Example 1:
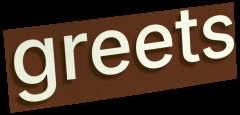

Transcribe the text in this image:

greets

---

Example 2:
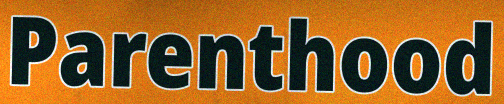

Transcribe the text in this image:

Parenthood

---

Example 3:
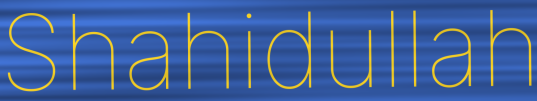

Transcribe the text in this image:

Shahidullah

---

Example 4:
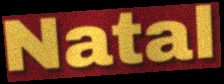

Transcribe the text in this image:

Natal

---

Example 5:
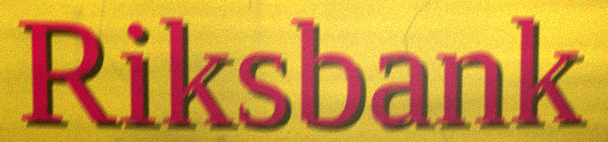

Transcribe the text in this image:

Riksbank